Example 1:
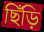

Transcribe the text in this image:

ছিঁড়ি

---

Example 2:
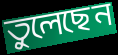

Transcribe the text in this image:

তুলেছেন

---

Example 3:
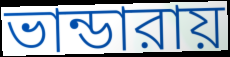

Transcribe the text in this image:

ভান্ডারায়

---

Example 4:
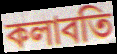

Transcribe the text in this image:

কলাবতি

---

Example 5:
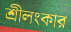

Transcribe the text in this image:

শ্রীলংকার